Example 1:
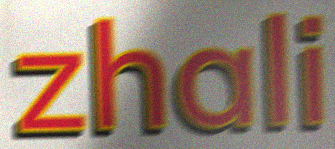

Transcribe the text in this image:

zhali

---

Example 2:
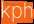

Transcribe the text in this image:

kph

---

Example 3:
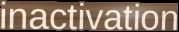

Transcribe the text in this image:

inactivation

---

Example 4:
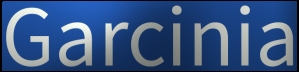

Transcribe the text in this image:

Garcinia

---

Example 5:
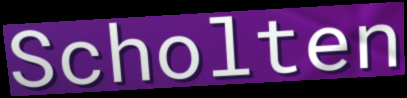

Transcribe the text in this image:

Scholten